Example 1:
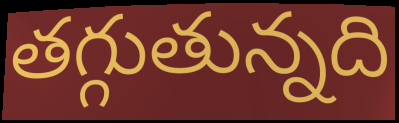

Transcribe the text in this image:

తగ్గుతున్నది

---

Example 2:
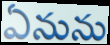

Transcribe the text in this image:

ఏనును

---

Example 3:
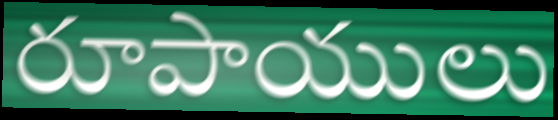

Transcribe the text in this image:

రూపాయులు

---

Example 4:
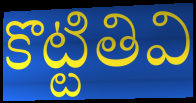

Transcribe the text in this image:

కొట్టితివి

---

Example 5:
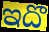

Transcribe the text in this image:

ఇదొ